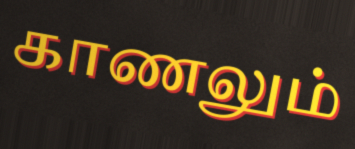
காணலும்